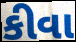
કીવા